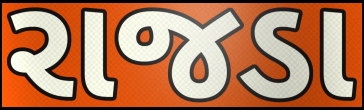
રાજડા